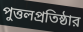
পুত্তলপ্রতিষ্ঠার